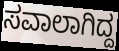
ಸವಾಲಾಗಿದ್ದ